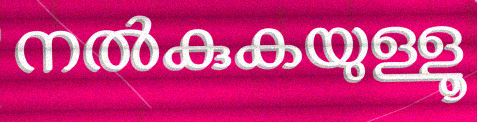
നൽകുകയുള്ളൂ